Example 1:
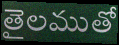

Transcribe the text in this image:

తైలముతో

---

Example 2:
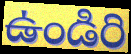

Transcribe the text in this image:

ఉండిరి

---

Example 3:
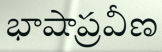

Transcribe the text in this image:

భాషాప్రవీణ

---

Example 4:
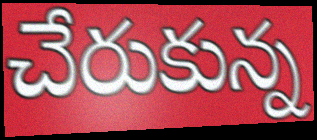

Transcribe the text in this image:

చేరుకున్న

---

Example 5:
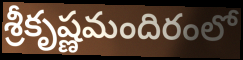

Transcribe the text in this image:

శ్రీకృష్ణమందిరంలో